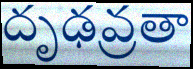
దృఢవ్రతా